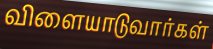
விளையாடுவார்கள்